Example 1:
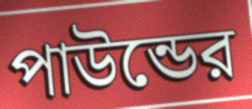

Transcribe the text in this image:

পাউন্ডের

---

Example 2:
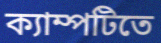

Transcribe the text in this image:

ক্যাম্পটিতে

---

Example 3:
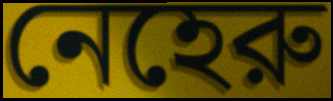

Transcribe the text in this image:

নেহেরু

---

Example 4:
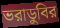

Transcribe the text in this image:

ভরাডুবির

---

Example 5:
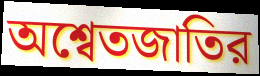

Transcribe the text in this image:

অশ্বেতজাতির